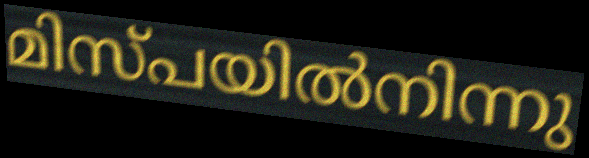
മിസ്പയിൽനിന്നു